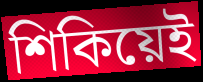
শিকিয়েই